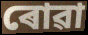
ৰোৱা